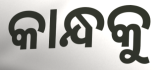
କାନ୍ଧକୁ